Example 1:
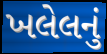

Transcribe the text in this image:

ખલેલનું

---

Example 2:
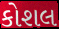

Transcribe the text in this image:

કોશલ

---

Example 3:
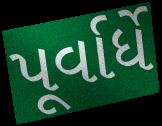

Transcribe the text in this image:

પૂર્વાર્ધે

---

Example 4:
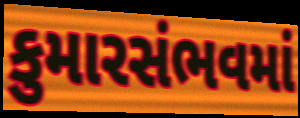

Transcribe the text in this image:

કુમારસંભવમાં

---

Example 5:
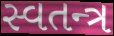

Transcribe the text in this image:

સ્વતન્ત્ર